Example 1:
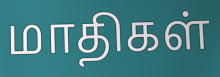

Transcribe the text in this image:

மாதிகள்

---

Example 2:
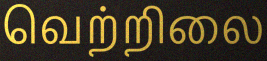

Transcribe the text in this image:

வெற்றிலை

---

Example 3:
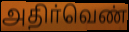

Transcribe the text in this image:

அதிர்வெண்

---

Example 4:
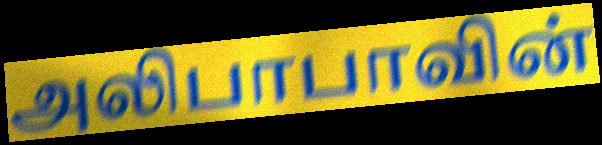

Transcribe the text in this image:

அலிபாபாவின்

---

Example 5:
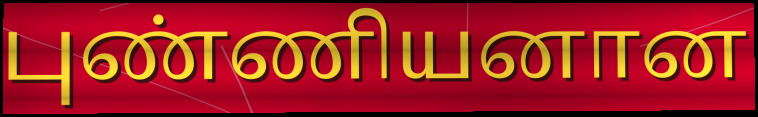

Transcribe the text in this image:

புண்ணியனான